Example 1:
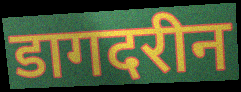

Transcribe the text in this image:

डागदरीन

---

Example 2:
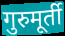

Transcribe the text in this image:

गुरुमूर्ती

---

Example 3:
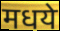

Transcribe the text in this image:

मधये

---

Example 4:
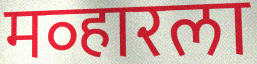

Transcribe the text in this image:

मव्हारला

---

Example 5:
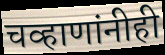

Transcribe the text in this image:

चव्हाणांनीही